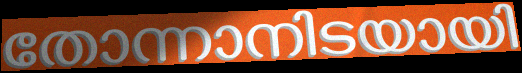
തോന്നാനിടയായി